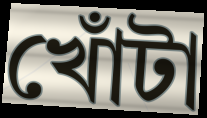
খোঁটা